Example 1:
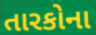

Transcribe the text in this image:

તારકોના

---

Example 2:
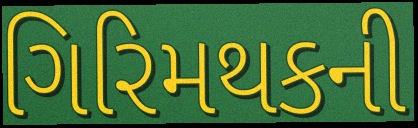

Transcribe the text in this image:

ગિરિમથકની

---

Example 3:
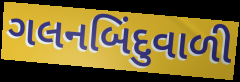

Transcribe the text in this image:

ગલનબિંદુવાળી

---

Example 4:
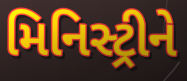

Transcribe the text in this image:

મિનિસ્ટ્રીને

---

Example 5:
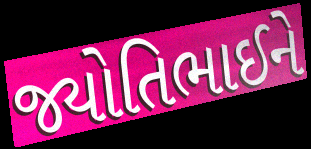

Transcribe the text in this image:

જ્યોતિભાઈને